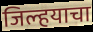
जिल्हयाचा